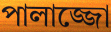
পালাজ্জো